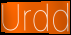
Urdd